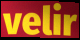
velir